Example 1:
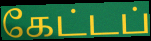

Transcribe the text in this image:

கேட்டப்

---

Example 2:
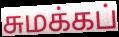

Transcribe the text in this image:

சுமக்கப்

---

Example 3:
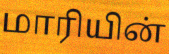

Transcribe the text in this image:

மாரியின்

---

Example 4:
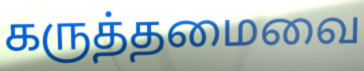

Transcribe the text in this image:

கருத்தமைவை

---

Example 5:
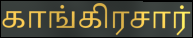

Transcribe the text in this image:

காங்கிரசார்